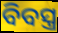
ବିବସ୍ତ୍ର